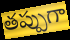
తప్పుగా